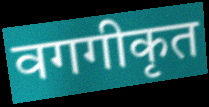
वगगीकृत